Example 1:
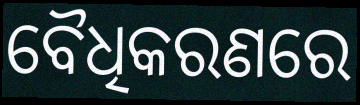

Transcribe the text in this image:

ବୈଧିକରଣରେ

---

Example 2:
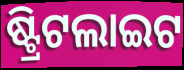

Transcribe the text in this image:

ଷ୍ଟ୍ରିଟଲାଇଟ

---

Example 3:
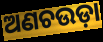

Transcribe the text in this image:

ଅଣଚଉଡ଼ା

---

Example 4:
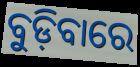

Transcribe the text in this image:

ବୁଡ଼ିବାରେ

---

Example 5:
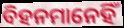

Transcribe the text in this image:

ବିହନମାନେହିଁ